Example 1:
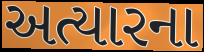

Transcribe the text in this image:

અત્યારના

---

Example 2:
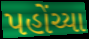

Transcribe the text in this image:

પહોંચ્યા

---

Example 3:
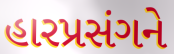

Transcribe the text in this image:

હારપ્રસંગને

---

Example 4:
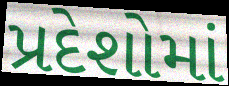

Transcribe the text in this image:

પ્રદેશોમાં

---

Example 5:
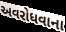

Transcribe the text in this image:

અવરોધવાના